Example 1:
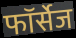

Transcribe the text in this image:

फॉर्सेज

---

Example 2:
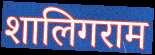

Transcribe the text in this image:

शालिगराम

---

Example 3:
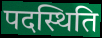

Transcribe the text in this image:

पदस्थिति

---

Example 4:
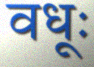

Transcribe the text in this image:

वधूः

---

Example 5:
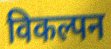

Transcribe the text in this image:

विकल्पन